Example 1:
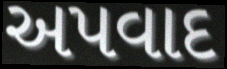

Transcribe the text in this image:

અપવાદ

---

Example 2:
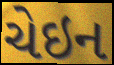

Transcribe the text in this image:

ચેઇન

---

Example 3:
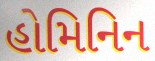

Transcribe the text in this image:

હોમિનિન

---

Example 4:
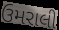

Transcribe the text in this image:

ઉમરાલી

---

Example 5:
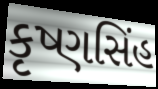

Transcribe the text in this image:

કૃષ્ણસિંહ